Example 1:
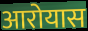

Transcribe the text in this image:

आरोयास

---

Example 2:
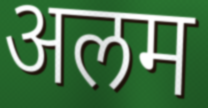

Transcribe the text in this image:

अलम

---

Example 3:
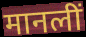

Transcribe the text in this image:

मानलीं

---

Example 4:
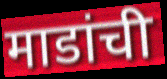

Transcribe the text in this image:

माडांची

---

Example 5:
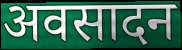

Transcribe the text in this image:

अवसादन